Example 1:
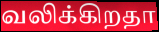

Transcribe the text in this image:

வலிக்கிறதா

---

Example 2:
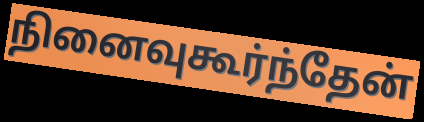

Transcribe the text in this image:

நினைவுகூர்ந்தேன்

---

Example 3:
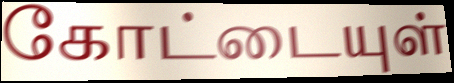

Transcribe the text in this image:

கோட்டையுள்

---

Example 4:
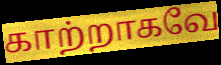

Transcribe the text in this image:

காற்றாகவே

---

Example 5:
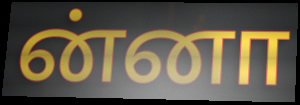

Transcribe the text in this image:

ன்னா